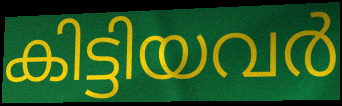
കിട്ടിയവർ